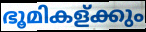
ഭൂമികള്ക്കും